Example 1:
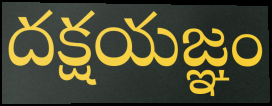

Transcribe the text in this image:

దక్షయజ్ఞం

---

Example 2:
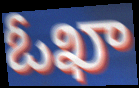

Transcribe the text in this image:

ఓఖా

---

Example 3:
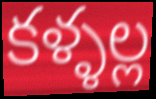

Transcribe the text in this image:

కళ్ళల్ల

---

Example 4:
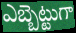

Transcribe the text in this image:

ఎబ్బెట్టుగా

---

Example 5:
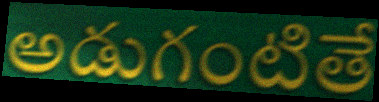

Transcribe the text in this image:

అడుగంటితే